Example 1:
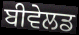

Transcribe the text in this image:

ਬੀਵੇਲਡ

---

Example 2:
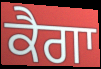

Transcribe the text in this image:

ਕੈਗਾ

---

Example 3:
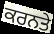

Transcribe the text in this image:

ਕਰਨਤੇ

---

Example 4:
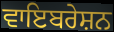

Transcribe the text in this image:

ਵਾਇਬਰੇਸ਼ਨ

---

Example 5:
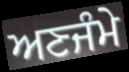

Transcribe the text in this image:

ਅਣਜੰਮੇ